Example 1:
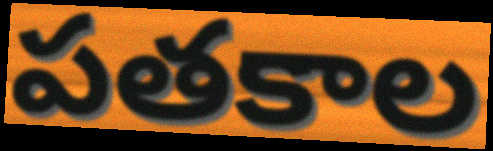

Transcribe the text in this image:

పతకాల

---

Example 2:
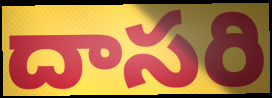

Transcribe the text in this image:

దాసరి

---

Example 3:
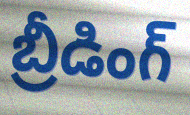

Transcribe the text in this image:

బ్రీడింగ్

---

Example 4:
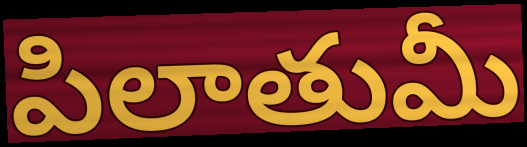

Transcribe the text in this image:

పిలాతుమీ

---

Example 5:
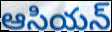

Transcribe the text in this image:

ఆసియన్